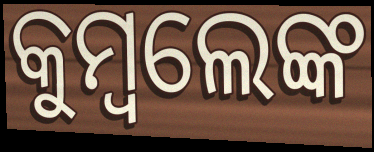
କୁମ୍ବଲେଙ୍କ